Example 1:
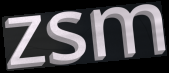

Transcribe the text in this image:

zsm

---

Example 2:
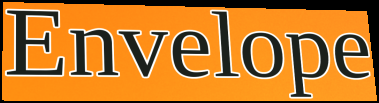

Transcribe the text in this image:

Envelope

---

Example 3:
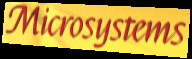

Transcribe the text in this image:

Microsystems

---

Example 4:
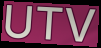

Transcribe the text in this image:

UTV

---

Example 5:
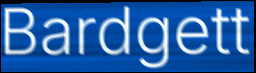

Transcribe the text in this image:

Bardgett